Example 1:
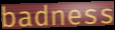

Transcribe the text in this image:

badness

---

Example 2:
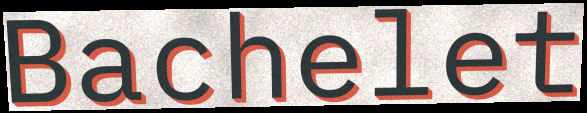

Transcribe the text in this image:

Bachelet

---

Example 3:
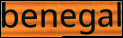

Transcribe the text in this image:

benegal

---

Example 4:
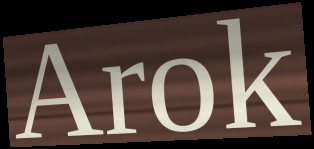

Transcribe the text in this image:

Arok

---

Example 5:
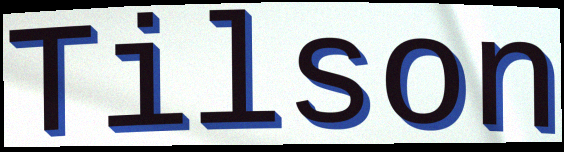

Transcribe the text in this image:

Tilson